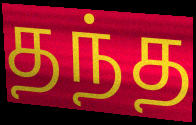
தந்த